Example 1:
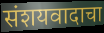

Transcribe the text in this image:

संशयवादाचा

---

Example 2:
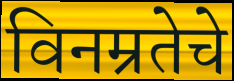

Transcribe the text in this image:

विनम्रतेचे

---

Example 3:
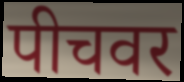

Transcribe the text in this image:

पीचवर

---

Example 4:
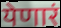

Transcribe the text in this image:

येणारं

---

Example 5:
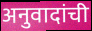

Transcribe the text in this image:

अनुवादांची